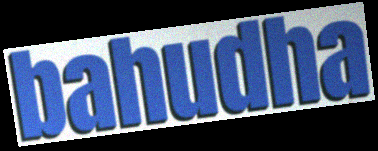
bahudha